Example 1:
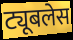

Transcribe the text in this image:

ट्यूबलेस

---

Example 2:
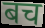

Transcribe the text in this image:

बच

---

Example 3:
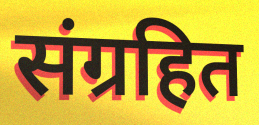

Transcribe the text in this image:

संग्रहित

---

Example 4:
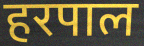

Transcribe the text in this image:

हरपाल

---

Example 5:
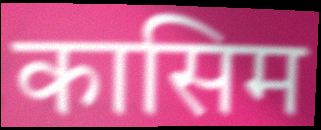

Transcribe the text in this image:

कासिम